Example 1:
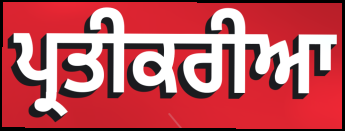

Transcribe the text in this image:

ਪ੍ਰਤੀਕਰੀਆ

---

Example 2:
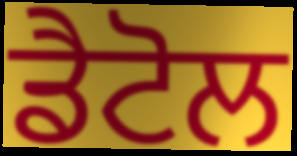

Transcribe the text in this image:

ਡੈਟੋਲ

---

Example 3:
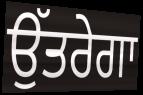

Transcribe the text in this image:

ਉੱਤਰੇਗਾ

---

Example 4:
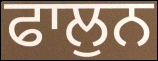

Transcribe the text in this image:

ਫਾਲੁਨ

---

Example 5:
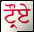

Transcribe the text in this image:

ਟ੍ਰੌਏ